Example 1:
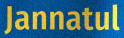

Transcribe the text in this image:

Jannatul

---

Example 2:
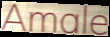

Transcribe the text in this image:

Amale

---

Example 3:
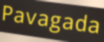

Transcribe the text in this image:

Pavagada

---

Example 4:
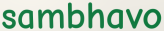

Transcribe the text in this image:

sambhavo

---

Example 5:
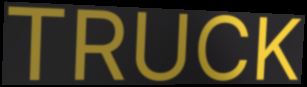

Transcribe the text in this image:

TRUCK